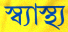
স্ব্যাস্থ্য